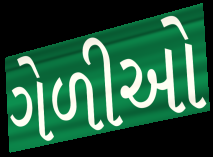
ગેળીઓ